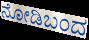
ನೋಡಿಬಂದ